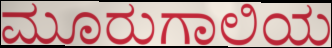
ಮೂರುಗಾಲಿಯ